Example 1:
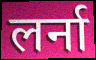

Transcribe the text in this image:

लर्ना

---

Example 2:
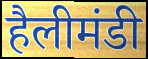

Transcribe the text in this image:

हैलीमंडी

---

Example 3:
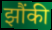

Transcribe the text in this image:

झौंकी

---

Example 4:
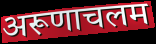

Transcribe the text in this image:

अरूणाचलम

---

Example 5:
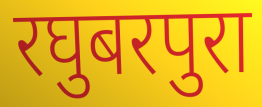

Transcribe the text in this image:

रघुबरपुरा